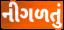
નીગળતું